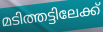
മടിത്തട്ടിലേക്ക്